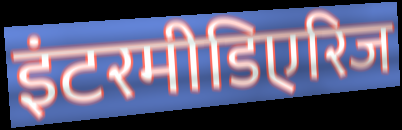
इंटरमीडिएरिज